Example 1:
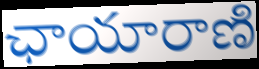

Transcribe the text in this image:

ఛాయారాణి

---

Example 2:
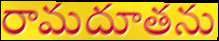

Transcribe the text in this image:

రామదూతను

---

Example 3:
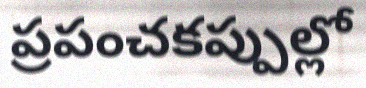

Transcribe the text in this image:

ప్రపంచకప్పుల్లో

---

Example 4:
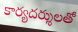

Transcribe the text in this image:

కార్యదర్శులతో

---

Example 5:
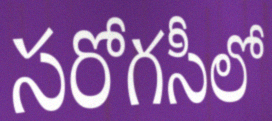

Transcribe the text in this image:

సరోగసీలో